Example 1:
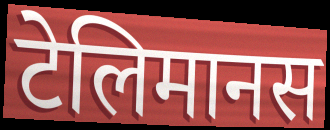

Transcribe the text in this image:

टेलिमानस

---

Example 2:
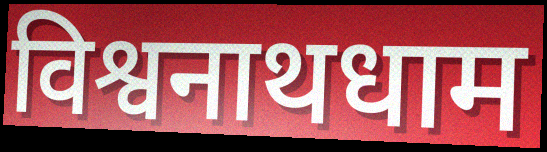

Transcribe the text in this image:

विश्वनाथधाम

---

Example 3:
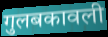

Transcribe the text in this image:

गुलबकावली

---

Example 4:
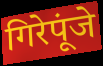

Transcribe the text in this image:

गिरेपूंजे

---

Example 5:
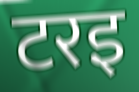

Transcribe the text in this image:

टरइ